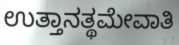
ಉತ್ತಾನತ್ಥಮೇವಾತಿ